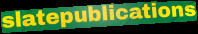
slatepublications